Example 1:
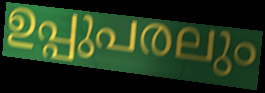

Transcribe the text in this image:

ഉപ്പുപരലും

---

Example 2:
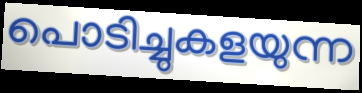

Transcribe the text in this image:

പൊടിച്ചുകളയുന്ന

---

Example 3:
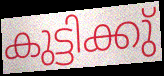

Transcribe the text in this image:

കുട്ടിക്കു്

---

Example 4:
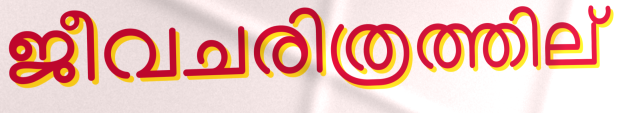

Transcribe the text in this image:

ജീവചരിത്രത്തില്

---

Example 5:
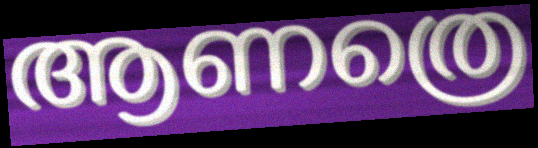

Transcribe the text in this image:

ആണത്രെ